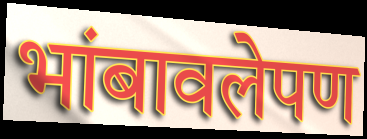
भांबावलेपण